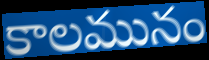
కాలమునం